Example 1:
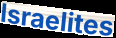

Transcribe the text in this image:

Israelites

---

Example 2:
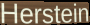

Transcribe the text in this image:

Herstein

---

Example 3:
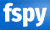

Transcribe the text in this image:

fspy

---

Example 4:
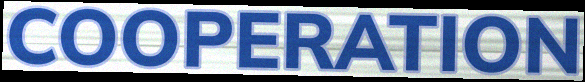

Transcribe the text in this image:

COOPERATION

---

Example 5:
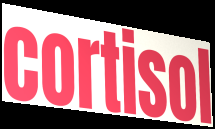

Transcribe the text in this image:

cortisol